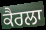
ਕੈਰਲਾ